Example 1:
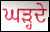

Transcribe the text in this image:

ਘੜ੍ਹਦੇ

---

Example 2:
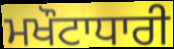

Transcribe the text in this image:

ਮਖੌਟਾਧਾਰੀ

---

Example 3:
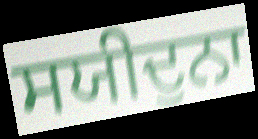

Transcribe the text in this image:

ਸਯੀਦੁਨਾ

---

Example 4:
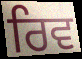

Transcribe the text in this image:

ਰਿਵ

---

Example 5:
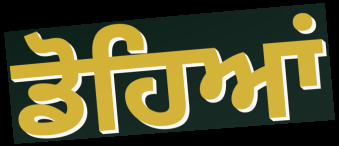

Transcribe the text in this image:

ਡੋਹਿਆਂ